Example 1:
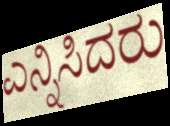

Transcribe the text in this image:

ಎನ್ನಿಸಿದರು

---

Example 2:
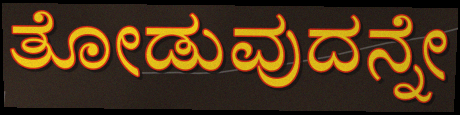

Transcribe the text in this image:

ತೋಡುವುದನ್ನೇ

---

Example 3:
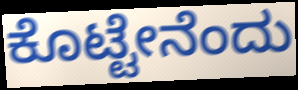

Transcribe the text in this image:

ಕೊಟ್ಟೇನೆಂದು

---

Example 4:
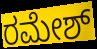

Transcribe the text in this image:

ರಮೇಶ್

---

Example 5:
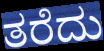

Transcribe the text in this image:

ತರೆದು